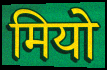
मियो